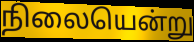
நிலையென்று